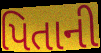
પિતાની